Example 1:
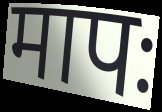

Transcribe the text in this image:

मापः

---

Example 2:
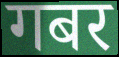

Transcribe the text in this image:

गबर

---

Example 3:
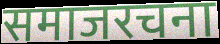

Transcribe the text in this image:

समाजरचना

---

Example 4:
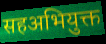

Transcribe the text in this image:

सहअभियुक्त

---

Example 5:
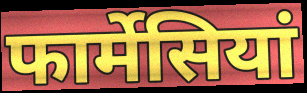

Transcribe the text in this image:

फार्मेसियां